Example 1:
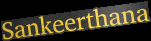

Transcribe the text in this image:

Sankeerthana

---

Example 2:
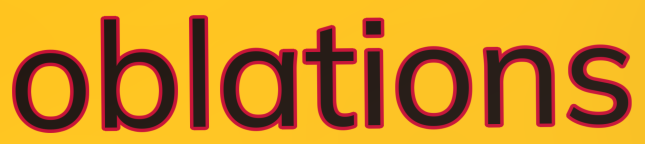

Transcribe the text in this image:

oblations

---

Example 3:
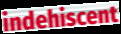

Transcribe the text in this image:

indehiscent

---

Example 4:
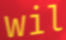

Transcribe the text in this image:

wil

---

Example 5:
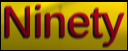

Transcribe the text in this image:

Ninety